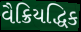
વૈક્રિયદ્ધિક